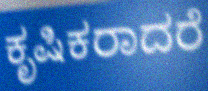
ಕೃಷಿಕರಾದರೆ